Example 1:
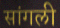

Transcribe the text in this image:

सांगली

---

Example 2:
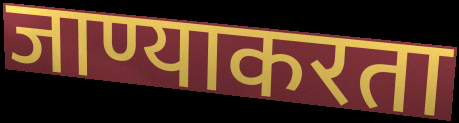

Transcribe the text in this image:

जाण्याकरता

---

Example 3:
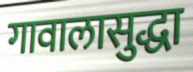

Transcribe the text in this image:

गावालासुद्धा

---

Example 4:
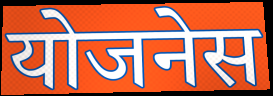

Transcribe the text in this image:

योजनेस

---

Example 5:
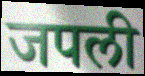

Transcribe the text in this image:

जपली